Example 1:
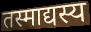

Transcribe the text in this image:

तस्माद्यस्य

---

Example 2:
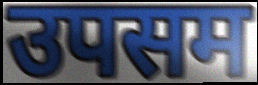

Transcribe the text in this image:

उपसम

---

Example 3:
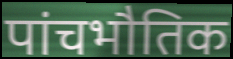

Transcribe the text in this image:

पांचभौतिक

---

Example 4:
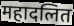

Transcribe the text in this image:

महादलित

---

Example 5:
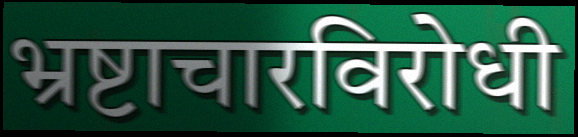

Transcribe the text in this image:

भ्रष्टाचारविरोधी